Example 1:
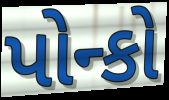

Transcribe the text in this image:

પોન્કો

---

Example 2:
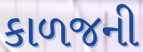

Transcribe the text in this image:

કાળજની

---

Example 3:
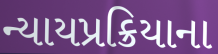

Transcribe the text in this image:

ન્યાયપ્રક્રિયાના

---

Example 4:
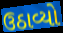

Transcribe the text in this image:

ઉઠાવ્યો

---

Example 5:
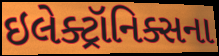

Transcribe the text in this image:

ઇલેક્ટ્રૉનિક્સના